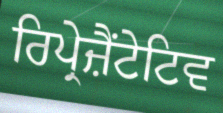
ਰਿਪ੍ਰੇਜ਼ੈਂਟੇਟਿਵ